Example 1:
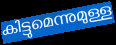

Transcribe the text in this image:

കിട്ടുമെന്നുമുള്ള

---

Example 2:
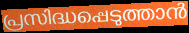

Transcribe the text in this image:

പ്രസിദ്ധപ്പെടുത്താൻ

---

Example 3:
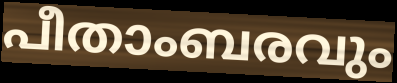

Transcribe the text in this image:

പീതാംബരവും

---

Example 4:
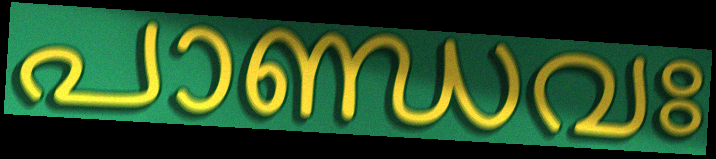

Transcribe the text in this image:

പാണ്ഡവഃ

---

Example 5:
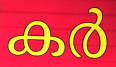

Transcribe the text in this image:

കർ